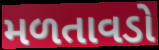
મળતાવડો